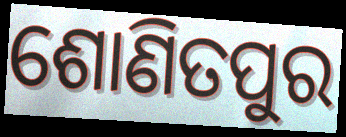
ଶୋଣିତପୁର